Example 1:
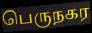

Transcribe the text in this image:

பெருநகர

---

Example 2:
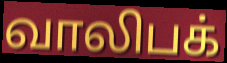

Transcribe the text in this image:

வாலிபக்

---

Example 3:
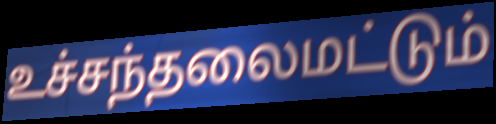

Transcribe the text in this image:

உச்சந்தலைமட்டும்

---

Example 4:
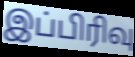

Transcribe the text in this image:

இப்பிரிவு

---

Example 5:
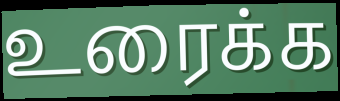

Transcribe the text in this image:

உரைக்க